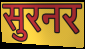
सुरनर